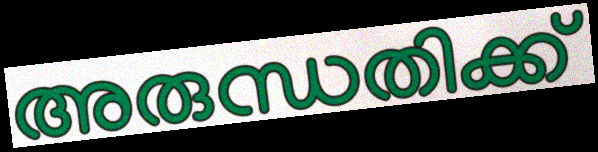
അരുന്ധതിക്ക്